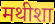
मथीशा